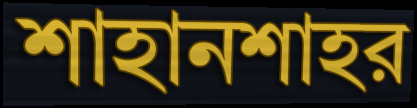
শাহানশাহর